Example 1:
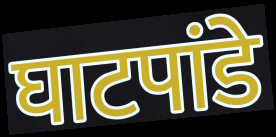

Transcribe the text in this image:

घाटपांडे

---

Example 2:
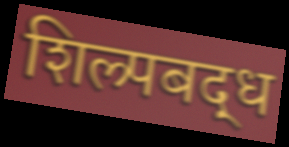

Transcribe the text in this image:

शिल्पबद्ध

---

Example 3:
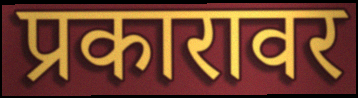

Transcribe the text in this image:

प्रकारावर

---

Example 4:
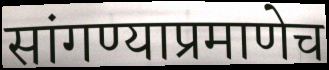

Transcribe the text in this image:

सांगण्याप्रमाणेच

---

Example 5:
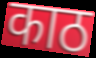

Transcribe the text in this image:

काठ